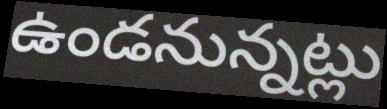
ఉండనున్నట్లు